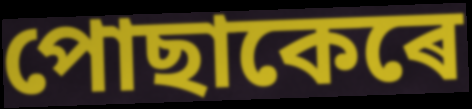
পোছাকেৰে